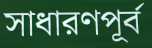
সাধারণপূর্ব